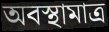
অবস্থামাত্র